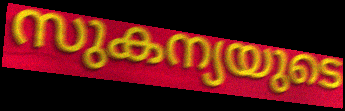
സുകന്യയുടെ